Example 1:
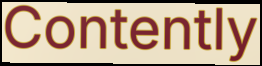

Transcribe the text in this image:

Contently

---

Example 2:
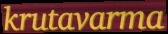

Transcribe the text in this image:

krutavarma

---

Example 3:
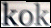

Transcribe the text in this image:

kok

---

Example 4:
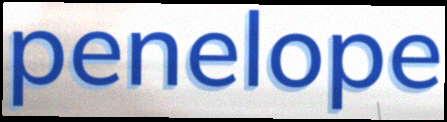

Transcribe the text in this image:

penelope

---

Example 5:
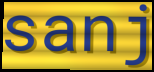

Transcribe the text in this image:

sanj